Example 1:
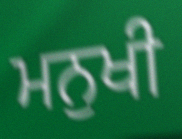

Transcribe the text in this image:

ਮਨੁਖੀ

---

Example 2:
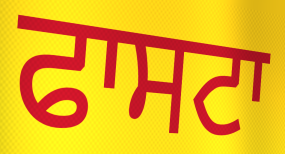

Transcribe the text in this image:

ਫਾਸਟਾ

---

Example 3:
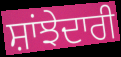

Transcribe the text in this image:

ਸ਼ਾਂਝੇਦਾਰੀ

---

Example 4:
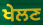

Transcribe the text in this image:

ਖੇਲਣ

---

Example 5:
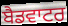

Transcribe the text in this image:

ਬੈਡਵਾਟਰ